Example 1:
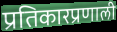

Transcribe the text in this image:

प्रतिकारप्रणाली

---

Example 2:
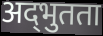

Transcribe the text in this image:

अद्‌भुतता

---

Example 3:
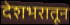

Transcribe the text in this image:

देशभरातून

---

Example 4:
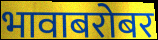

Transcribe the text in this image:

भावाबरोबर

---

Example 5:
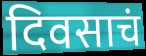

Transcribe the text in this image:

दिवसाचं